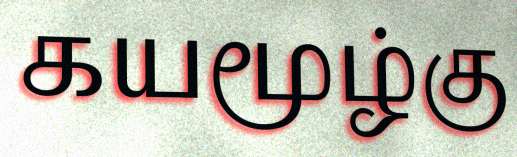
கயமூழ்கு